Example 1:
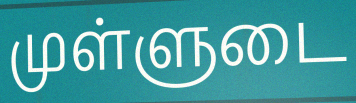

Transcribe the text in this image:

முள்ளுடை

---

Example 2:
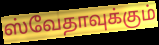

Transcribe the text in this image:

ஸ்வேதாவுக்கும்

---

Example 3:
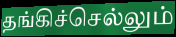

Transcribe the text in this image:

தங்கிச்செல்லும்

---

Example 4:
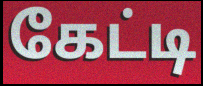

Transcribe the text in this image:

கேட்டி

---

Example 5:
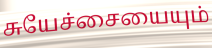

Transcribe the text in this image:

சுயேச்சையையும்